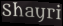
Shayri